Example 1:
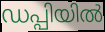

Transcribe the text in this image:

ഡപ്പിയിൽ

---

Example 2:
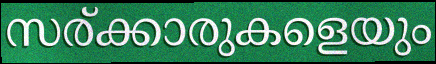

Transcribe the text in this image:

സര്ക്കാരുകളെയും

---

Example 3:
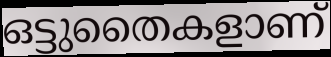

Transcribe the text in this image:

ഒട്ടുതൈകളാണ്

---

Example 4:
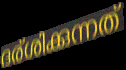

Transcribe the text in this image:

ദര്ശിക്കുന്നത്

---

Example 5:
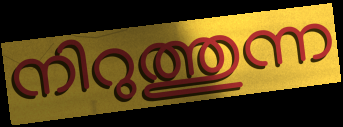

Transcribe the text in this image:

നിറുത്തുന്ന